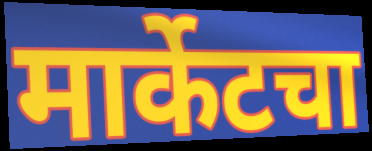
मार्केटचा